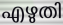
എഴുതി